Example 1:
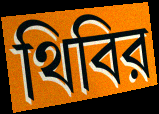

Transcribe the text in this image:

থিবির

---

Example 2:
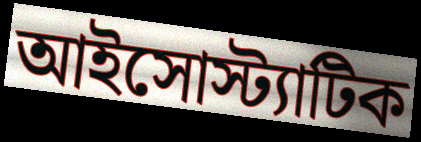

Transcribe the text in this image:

আইসোস্ট্যাটিক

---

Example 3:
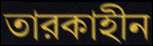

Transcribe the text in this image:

তারকাহীন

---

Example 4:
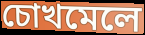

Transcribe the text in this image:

চোখমেলে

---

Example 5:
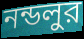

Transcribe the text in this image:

নন্ডলুর